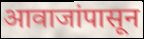
आवाजांपासून